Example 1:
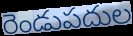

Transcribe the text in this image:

రెండుపదుల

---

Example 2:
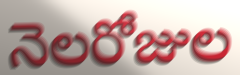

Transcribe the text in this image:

నెలరోజుల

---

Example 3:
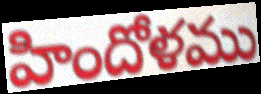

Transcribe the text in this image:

హిందోళము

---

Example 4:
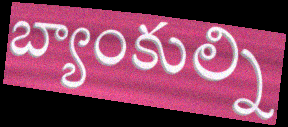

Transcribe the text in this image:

బ్యాంకుల్ని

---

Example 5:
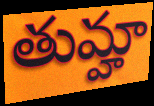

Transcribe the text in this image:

తుమ్హా